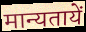
मान्यतायें